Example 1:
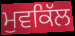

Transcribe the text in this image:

ਮੁਵਕਿੱਲ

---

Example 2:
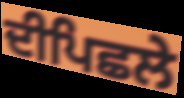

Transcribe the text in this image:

ਦੀਪਿਛਲੇ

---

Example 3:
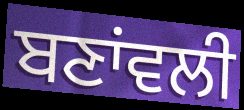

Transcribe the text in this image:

ਬਣਾਂਵਲੀ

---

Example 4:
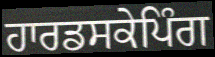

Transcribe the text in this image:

ਹਾਰਡਸਕੇਪਿੰਗ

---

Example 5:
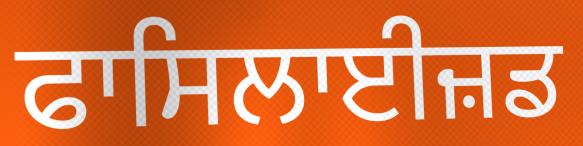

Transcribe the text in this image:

ਫਾਸਿਲਾਈਜ਼ਡ